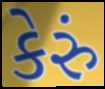
કેરું